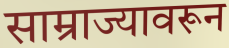
साम्राज्यावरून